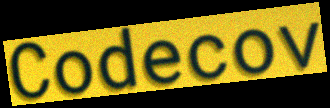
Codecov